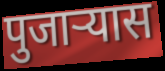
पुजाऱ्यास